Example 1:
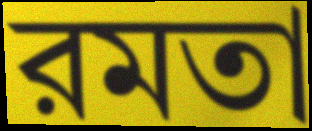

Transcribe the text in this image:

রমতা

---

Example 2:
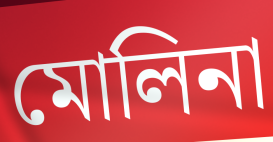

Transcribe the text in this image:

মোলিনা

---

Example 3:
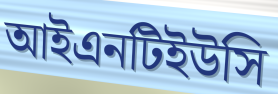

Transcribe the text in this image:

আইএনটিইউসি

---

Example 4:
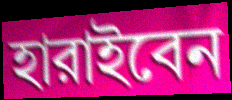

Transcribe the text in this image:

হারাইবেন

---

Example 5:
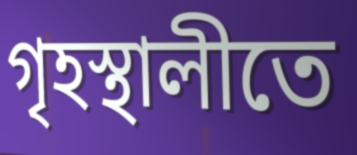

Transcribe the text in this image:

গৃহস্থালীতে